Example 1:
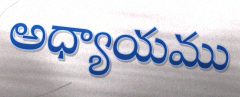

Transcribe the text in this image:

అధ్యాయము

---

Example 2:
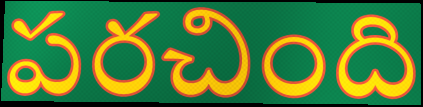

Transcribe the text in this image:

పరచింది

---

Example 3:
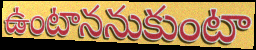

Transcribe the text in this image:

ఉంటాననుకుంటా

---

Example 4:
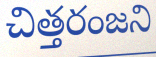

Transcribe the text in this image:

చిత్తరంజని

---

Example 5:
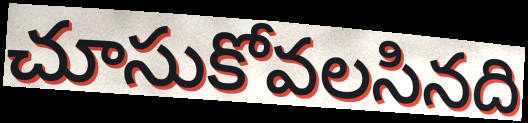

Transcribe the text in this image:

చూసుకోవలసినది